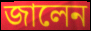
জালেন